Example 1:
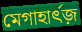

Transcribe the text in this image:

মেগাহার্ৎজ়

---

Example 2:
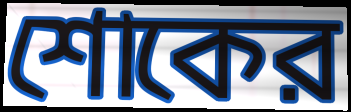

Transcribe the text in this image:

শোকের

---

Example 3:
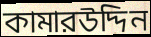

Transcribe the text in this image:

কামারউদ্দিন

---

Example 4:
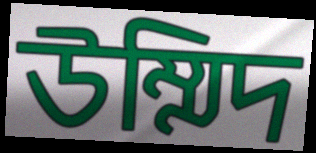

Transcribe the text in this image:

উম্মিদ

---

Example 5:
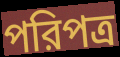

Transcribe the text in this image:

পরিপত্র